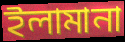
ইলামানা